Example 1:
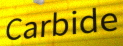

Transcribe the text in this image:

Carbide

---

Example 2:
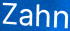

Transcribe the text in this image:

Zahn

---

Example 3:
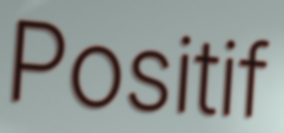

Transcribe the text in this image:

Positif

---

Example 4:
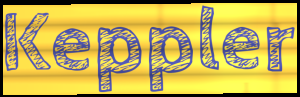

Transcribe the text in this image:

Keppler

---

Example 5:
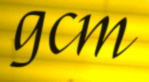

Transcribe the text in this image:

gcm